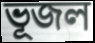
ভূজল